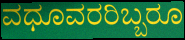
ವಧೂವರರಿಬ್ಬರೂ